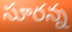
సూరన్న